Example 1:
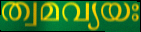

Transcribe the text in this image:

ത്വമവ്യയഃ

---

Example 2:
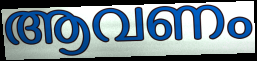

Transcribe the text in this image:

ആവണം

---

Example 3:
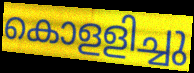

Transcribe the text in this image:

കൊളളിച്ചു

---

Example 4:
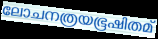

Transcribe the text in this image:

ലോചനത്രയഭൂഷിതമ്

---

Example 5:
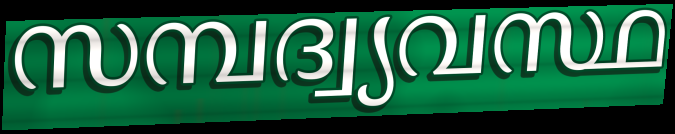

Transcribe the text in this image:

സമ്പദ്വ്യവസ്ഥ